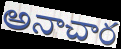
అనాచార